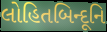
લોહિતબિન્દૂનિ